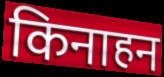
किनाहन